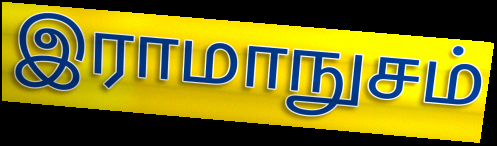
இராமாநுசம்